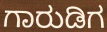
ಗಾರುಡಿಗ